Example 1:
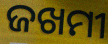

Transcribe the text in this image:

ଜଖମୀ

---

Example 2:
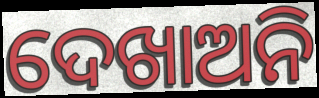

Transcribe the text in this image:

ଦେଖାଅନି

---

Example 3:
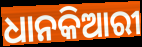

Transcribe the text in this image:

ଧାନକିଆରୀ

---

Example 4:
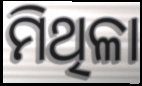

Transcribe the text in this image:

ମିଥିଳା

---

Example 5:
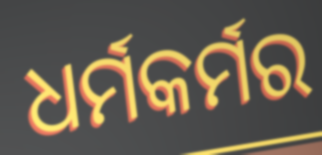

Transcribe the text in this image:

ଧର୍ମକର୍ମର